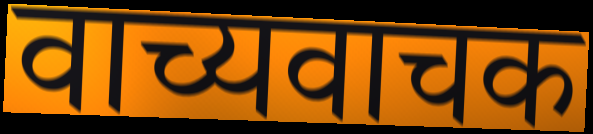
वाच्यवाचक